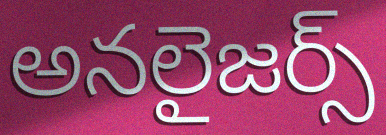
అనలైజర్స్